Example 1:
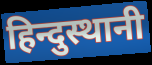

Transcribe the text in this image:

हिन्दुस्थानी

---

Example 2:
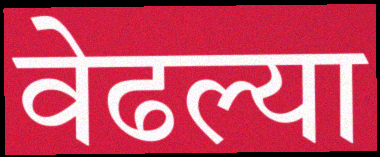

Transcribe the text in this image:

वेढल्या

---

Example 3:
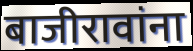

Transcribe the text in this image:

बाजीरावांना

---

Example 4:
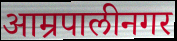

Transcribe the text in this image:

आम्रपालीनगर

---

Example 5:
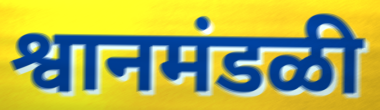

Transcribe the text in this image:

श्वानमंडळी